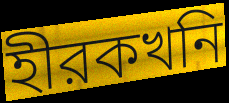
হীরকখনি